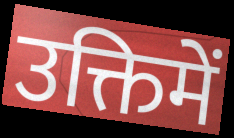
उक्तिमें